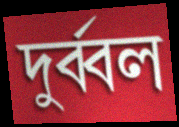
দুর্ব্বল